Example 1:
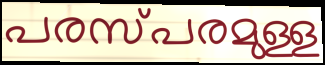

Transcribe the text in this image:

പരസ്പരമുള്ള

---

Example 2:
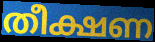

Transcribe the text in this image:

തീക്ഷണ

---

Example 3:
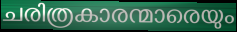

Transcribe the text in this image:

ചരിത്രകാരന്മാരെയും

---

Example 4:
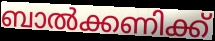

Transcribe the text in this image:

ബാൽക്കണിക്ക്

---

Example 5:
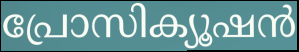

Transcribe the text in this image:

പ്രോസിക്യൂഷൻ